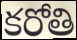
కరోతి